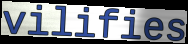
vilifies